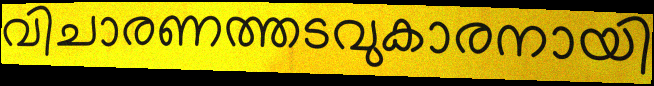
വിചാരണത്തടവുകാരനായി